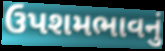
ઉપશમભાવનું